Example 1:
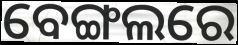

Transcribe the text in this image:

ବେଙ୍ଗଲରେ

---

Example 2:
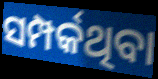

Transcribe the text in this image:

ସମ୍ପର୍କଥିବା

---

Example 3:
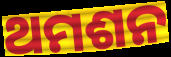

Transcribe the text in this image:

ଥମଶନ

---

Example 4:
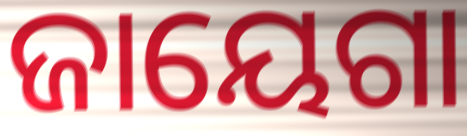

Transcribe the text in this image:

ଜାୟେଗା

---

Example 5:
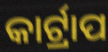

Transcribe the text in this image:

କାର୍ଟ୍ରାପ